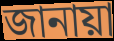
জানায়া